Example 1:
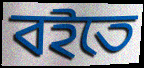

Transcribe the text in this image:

বইতে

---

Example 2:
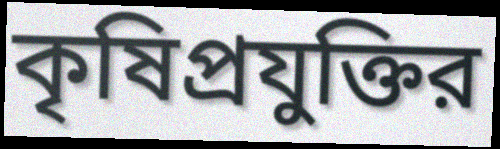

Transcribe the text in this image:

কৃষিপ্রযুক্তির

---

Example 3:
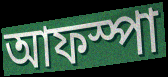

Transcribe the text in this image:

আফস্পা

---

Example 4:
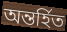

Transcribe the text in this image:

অন্তর্হিত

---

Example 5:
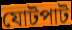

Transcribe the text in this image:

যোটপাট